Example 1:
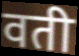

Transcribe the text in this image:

वती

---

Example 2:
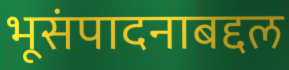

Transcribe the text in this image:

भूसंपादनाबद्दल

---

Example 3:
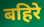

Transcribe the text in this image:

बहिरे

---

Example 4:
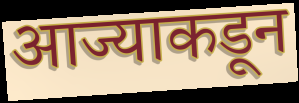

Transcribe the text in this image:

आज्याकडून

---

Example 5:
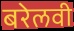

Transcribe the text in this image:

बरेलवी